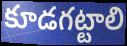
కూడగట్టాలి